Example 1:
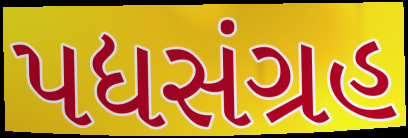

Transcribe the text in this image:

પદ્યસંગ્રહ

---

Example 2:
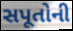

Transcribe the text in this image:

સપૂતોની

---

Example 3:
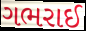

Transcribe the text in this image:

ગભરાઈ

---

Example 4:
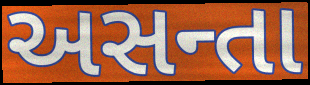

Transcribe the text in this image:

અસન્તા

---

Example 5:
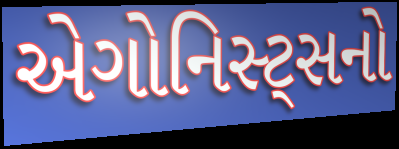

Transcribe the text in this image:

એગોનિસ્ટ્સનો